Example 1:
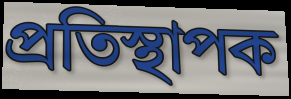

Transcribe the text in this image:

প্ৰতিস্থাপক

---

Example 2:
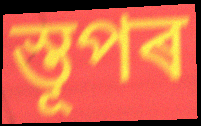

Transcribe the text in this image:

স্তূপৰ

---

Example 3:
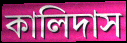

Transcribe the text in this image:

কালিদাস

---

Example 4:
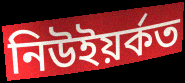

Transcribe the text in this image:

নিউইয়ৰ্কত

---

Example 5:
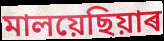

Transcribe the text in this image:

মালয়েছিয়াৰ